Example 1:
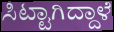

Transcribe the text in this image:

ಸಿಟ್ಟಾಗಿದ್ದಾಳೆ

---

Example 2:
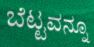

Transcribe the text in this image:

ಬೆಟ್ಟವನ್ನೂ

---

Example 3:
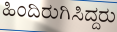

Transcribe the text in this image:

ಹಿಂದಿರುಗಿಸಿದ್ದರು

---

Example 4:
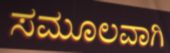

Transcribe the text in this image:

ಸಮೂಲವಾಗಿ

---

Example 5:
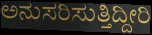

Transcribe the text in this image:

ಅನುಸರಿಸುತ್ತಿದ್ದೀರಿ